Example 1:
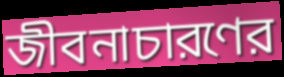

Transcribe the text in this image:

জীবনাচারণের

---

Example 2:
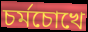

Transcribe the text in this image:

চর্মচোখে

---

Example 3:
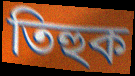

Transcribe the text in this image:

তিহুক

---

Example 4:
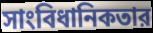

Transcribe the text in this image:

সাংবিধানিকতার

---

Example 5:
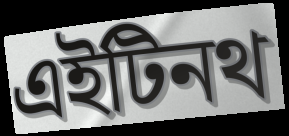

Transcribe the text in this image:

এইটিনথ